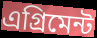
এগ্রিমেন্ট